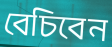
বেচিবেন